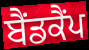
ਬੈਂਡਕੈਂਪ